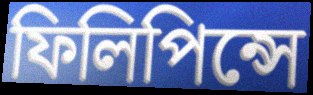
ফিলিপিন্সে